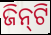
ଜିନ୍‌ଟି